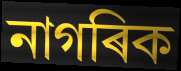
নাগৰিক